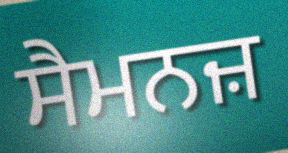
ਸੈਮਨਜ਼